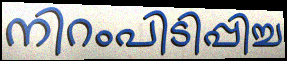
നിറംപിടിപ്പിച്ച